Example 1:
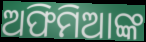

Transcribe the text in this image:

ଅଫିମିଆଙ୍କ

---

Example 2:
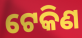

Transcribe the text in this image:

ଟେକିଣ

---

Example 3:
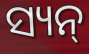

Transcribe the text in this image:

ସ୍ୟନ୍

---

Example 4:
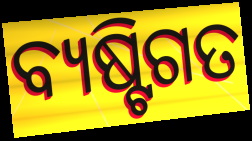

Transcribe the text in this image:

ବ୍ୟଷ୍ଟିଗତ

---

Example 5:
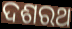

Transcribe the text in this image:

ଦଶରଥ